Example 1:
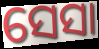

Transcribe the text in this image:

ସେସା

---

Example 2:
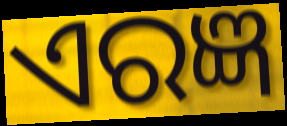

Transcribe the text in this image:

ଏରଜ୍ଞ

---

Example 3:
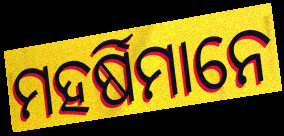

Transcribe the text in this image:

ମହର୍ଷିମାନେ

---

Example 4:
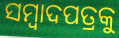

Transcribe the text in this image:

ସମ୍ବାଦପତ୍ରକୁ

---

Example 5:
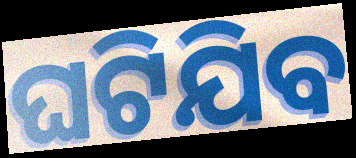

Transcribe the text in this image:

ଘଟିଯିବ